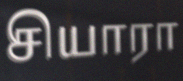
சியாரா